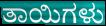
ತಾಯಿಗಳು